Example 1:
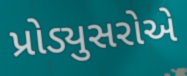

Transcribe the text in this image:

પ્રોડ્યુસરોએ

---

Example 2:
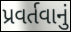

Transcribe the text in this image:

પ્રવર્તવાનું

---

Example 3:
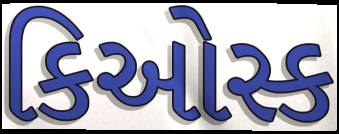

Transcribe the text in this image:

કિઓસ્ક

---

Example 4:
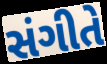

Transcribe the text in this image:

સંગીતે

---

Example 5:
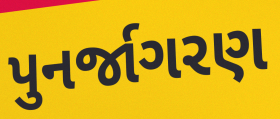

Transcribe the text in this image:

પુનર્જાગરણ